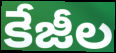
కేజీల